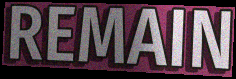
REMAIN